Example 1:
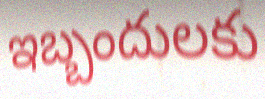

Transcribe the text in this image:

ఇబ్బందులకు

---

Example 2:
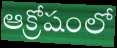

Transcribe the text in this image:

ఆక్రోషంలో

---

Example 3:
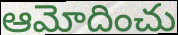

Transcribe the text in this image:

ఆమోదించు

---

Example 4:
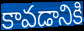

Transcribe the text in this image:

కావడానికి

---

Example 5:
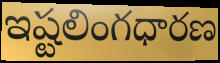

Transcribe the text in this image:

ఇష్టలింగధారణ